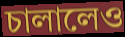
চালালেও